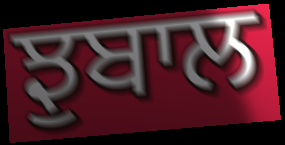
ਝੁਬਾਲ